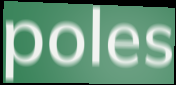
poles